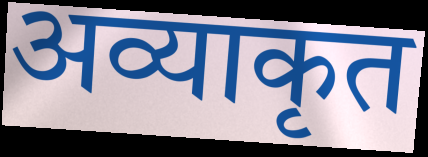
अव्याकृत